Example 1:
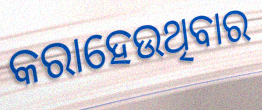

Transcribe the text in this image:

କରାହେଉଥିବାର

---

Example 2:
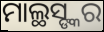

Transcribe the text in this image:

ମାଲ୍ଥସ୍ଙ୍କର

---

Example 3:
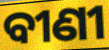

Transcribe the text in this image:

ବୀଣୀ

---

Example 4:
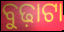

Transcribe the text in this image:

ବୁଢ଼ାଟା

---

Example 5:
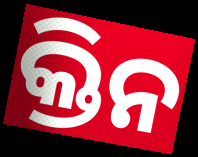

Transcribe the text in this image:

କ୍ତିନ